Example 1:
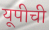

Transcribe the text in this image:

यूपीची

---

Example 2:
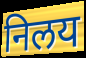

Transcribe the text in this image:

निलय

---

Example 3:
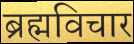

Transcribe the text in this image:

ब्रह्मविचार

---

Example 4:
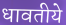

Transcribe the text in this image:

धावतीये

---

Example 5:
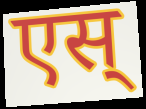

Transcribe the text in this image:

एस्